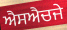
ਐਸਐਚਜੇ